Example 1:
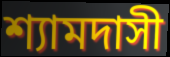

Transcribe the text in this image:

শ্যামদাসী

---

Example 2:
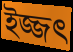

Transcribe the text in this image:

ইজ্জৎ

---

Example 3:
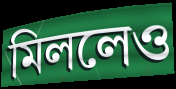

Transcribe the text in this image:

মিললেও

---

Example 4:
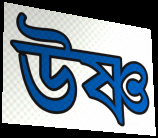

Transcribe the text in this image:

উষ্ণ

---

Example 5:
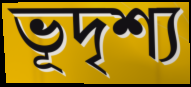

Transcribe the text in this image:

ভূদৃশ্য